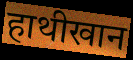
हाथीखान